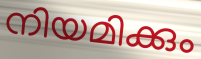
നിയമിക്കും